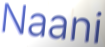
Naani